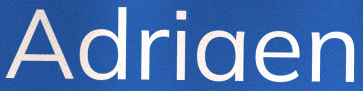
Adriaen